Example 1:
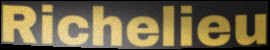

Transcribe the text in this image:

Richelieu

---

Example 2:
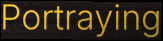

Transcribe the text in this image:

Portraying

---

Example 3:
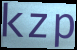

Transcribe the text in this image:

kzp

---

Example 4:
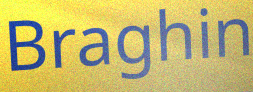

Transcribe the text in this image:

Braghin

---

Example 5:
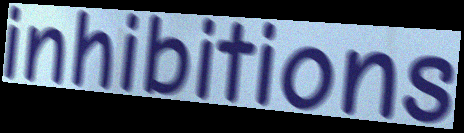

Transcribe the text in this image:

inhibitions